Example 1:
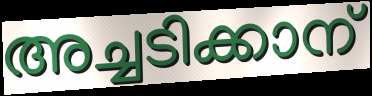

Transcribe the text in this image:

അച്ചടിക്കാന്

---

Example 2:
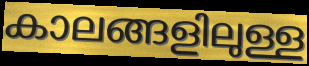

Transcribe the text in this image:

കാലങ്ങളിലുള്ള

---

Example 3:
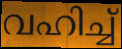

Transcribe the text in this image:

വഹിച്ച്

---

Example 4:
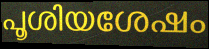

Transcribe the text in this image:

പൂശിയശേഷം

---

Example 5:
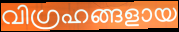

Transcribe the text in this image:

വിഗ്രഹങ്ങളായ